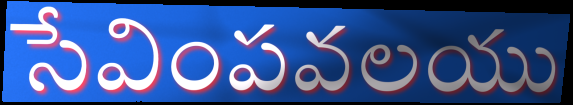
సేవింపవలయు